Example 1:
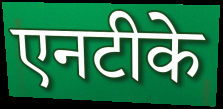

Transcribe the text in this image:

एनटीके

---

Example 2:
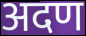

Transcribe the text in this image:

अदण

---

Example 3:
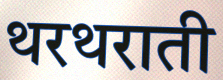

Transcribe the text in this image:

थरथराती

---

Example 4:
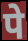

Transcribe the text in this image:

पे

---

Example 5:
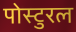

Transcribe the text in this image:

पोस्टुरल